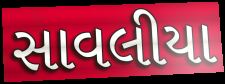
સાવલીયા